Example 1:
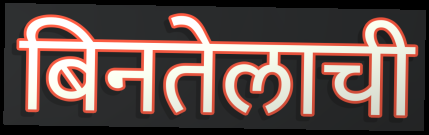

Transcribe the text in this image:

बिनतेलाची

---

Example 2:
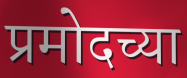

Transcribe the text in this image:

प्रमोदच्या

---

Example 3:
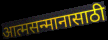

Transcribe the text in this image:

आत्मसन्मानासाठी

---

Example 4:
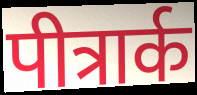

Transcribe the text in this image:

पीत्रार्क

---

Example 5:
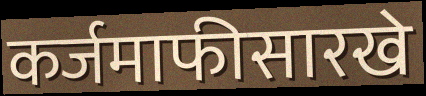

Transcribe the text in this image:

कर्जमाफीसारखे